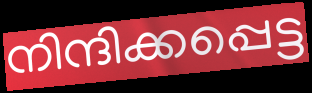
നിന്ദിക്കപ്പെട്ട